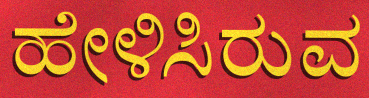
ಹೇಳಿಸಿರುವ